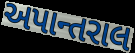
અપાન્તરાલ